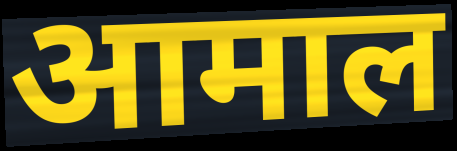
आमाल